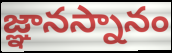
జ్ఞానస్నానం